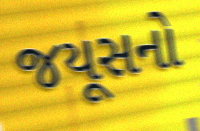
જયૂસનો